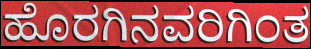
ಹೊರಗಿನವರಿಗಿಂತ